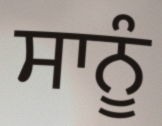
ਸਾਨੂੰ